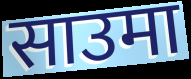
साउमा